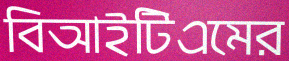
বিআইটিএমের